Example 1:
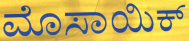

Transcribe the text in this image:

ಮೊಸಾಯಿಕ್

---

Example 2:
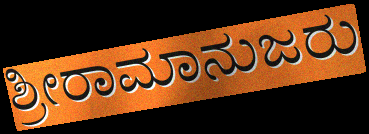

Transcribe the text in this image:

ಶ್ರೀರಾಮಾನುಜರು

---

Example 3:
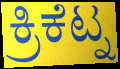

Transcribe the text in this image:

ಕ್ರಿಕೆಟ್ನ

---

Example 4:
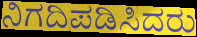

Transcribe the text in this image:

ನಿಗದಿಪಡಿಸಿದರು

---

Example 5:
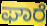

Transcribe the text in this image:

ಘಾರೆ